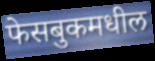
फेसबुकमधील